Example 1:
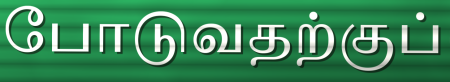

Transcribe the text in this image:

போடுவதற்குப்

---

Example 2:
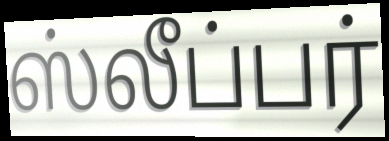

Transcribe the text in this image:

ஸ்லீப்பர்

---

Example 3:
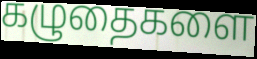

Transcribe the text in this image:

கழுதைகளை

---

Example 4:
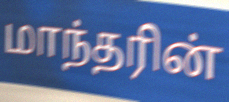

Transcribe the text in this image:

மாந்தரின்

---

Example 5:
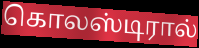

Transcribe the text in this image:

கொலஸ்டிரால்